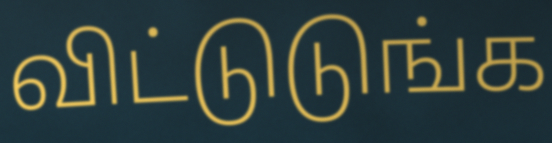
விட்டுடுங்க